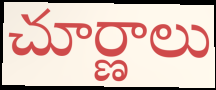
చూర్ణాలు